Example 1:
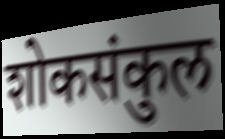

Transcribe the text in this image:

शोकसंकुल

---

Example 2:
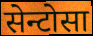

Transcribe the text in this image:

सेन्टोसा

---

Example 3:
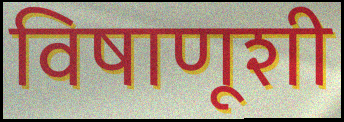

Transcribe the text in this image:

विषाणूशी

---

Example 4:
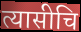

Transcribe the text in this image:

त्यासीचि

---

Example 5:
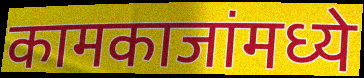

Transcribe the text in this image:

कामकाजांमध्ये